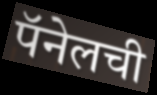
पॅनेलची